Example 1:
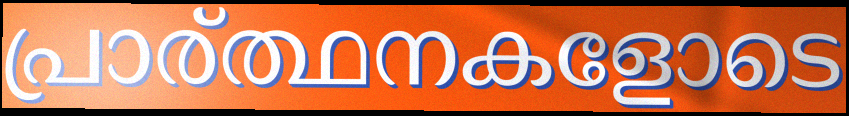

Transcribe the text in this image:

പ്രാര്ത്ഥനകളോടെ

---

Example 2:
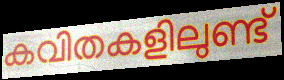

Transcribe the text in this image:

കവിതകളിലുണ്ട്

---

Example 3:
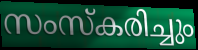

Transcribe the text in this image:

സംസ്കരിച്ചും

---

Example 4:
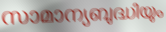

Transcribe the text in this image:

സാമാന്യബുദ്ധിയും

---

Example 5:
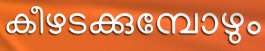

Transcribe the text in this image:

കീഴടക്കുമ്പോഴും